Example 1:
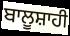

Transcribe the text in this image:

ਬਾਲੂਸ਼ਾਹੀ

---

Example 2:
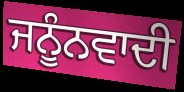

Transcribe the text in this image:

ਜਨੂੰਨਵਾਦੀ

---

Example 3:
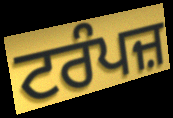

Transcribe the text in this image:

ਟਰੰਪਜ਼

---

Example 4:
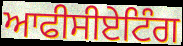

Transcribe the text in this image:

ਆਫੀਸੀਏਟਿੰਗ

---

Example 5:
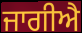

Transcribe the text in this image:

ਜਾਗੀਐ